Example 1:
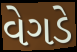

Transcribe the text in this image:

વેગડે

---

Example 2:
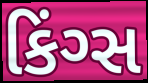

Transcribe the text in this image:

કિંગ્સ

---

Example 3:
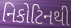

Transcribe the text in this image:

નિકોટિનથી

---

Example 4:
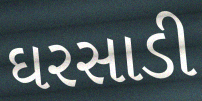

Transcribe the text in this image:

ઘરસાડી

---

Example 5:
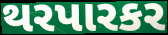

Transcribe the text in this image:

થરપારકર